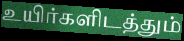
உயிர்களிடத்தும்